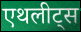
एथलीट्स